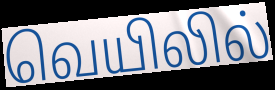
வெயிலில்